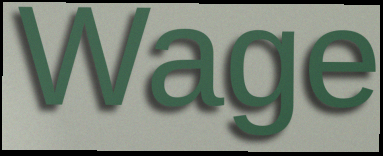
Wage